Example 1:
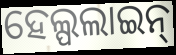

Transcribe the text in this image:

ହେଲ୍ପଲାଇନ୍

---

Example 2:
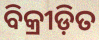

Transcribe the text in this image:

ବିକ୍ରୀଡ଼ିତ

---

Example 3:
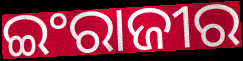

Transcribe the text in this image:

ଇଂରାଜୀର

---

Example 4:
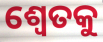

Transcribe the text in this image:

ଶ୍ଵେତକୁ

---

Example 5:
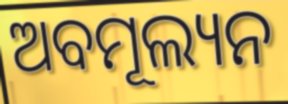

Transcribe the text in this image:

ଅବମୂଲ୍ୟନ